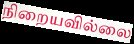
நிறையவில்லை